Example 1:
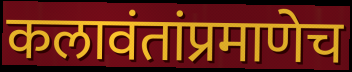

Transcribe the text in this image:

कलावंतांप्रमाणेच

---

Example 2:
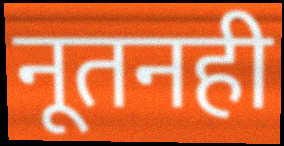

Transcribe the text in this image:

नूतनही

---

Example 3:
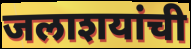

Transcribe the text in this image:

जलाशयांची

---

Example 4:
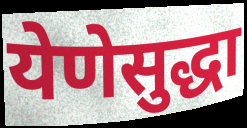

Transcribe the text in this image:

येणेसुद्धा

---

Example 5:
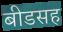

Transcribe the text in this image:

बीडसह